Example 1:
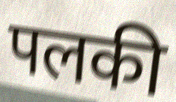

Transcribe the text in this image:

पलकी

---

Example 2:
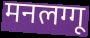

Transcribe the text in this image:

मनलग्गू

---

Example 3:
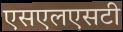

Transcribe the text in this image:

एसएलएसटी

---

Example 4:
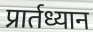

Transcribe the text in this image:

प्रार्तध्यान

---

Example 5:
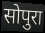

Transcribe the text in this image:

सोपुरा